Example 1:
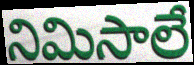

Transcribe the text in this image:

నిమిసాలే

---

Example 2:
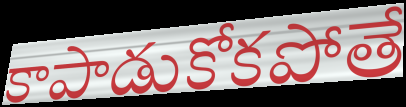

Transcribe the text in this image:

కాపాడుకోకపోతే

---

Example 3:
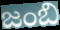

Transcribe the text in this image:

జంబి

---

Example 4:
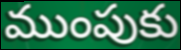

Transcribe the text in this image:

ముంపుకు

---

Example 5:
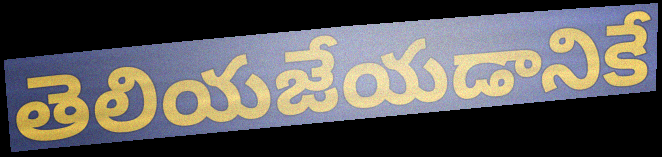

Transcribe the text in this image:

తెలియజేయడానికే